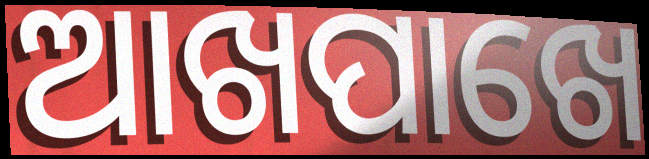
ଆଖପାଖେ